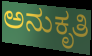
ಅನುಕೃತಿ